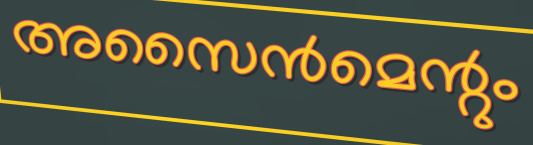
അസൈൻമെന്റും